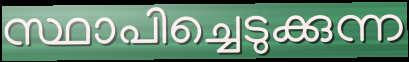
സ്ഥാപിച്ചെടുക്കുന്ന